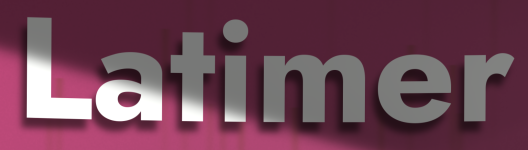
Latimer